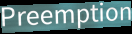
Preemption